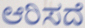
ಆರಿಸದೆ